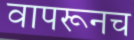
वापरूनच